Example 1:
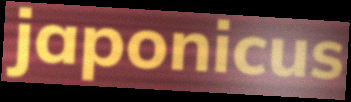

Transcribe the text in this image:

japonicus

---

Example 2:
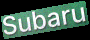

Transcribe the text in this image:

Subaru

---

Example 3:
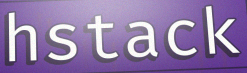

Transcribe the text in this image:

hstack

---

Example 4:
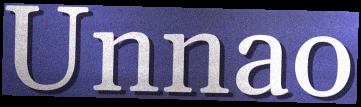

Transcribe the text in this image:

Unnao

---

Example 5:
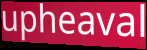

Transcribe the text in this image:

upheaval